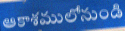
ఆకాశములోనుండి